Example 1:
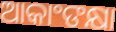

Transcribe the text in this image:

ଆକାଂଙକ୍ଷା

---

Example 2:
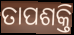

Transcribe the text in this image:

ତାପଶକ୍ତି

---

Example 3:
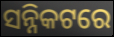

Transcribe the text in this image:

ସନ୍ନିକଟରେ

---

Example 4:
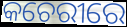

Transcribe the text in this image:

କଚେରୀରେ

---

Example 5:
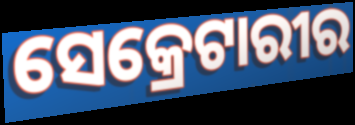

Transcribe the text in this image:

ସେକ୍ରେଟାରୀର